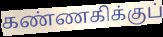
கண்ணகிக்குப்